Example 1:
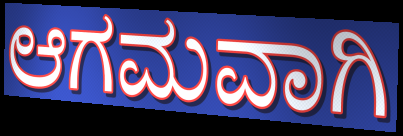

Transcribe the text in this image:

ಆಗಮವಾಗಿ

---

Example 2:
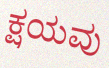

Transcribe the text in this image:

ಕ್ಷಯವು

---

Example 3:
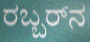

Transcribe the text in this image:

ರಬ್ಬರ್‌ನ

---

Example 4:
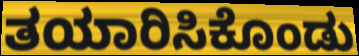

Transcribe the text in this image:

ತಯಾರಿಸಿಕೊಂಡು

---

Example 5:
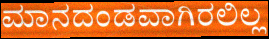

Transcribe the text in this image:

ಮಾನದಂಡವಾಗಿರಲಿಲ್ಲ